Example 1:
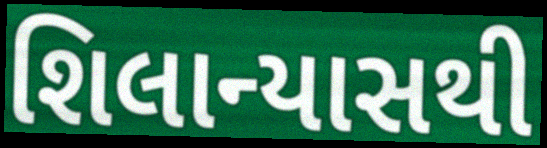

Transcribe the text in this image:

શિલાન્યાસથી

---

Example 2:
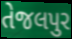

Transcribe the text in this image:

તેજલપુર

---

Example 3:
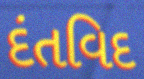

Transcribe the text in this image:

દંતવિદ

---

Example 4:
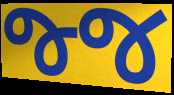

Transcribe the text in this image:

જ્જ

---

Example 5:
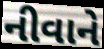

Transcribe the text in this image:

નીવાને